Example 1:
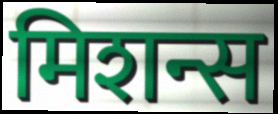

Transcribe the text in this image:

मिशन्स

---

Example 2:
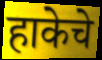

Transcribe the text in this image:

हाकेचे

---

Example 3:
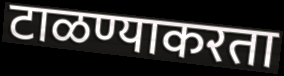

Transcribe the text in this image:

टाळण्याकरता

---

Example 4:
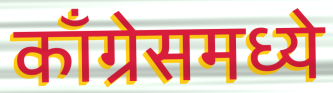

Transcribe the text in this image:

काँग्रेसमध्ये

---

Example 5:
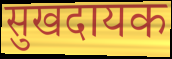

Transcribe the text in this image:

सुखदायक